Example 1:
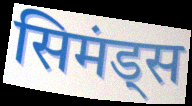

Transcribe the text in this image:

सिमंड्स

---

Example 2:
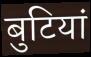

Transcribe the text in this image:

बुटियां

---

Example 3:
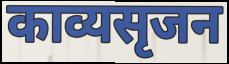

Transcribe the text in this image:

काव्यसृजन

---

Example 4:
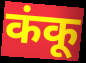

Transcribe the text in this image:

कंकू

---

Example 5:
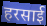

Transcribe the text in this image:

हरसाई